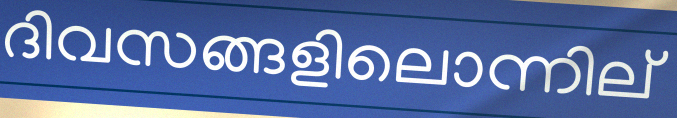
ദിവസങ്ങളിലൊന്നില്